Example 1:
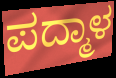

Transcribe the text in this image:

ಪದ್ಮಾಳ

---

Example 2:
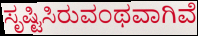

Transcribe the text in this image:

ಸೃಷ್ಟಿಸಿರುವಂಥವಾಗಿವೆ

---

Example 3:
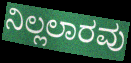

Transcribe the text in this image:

ನಿಲ್ಲಲಾರವು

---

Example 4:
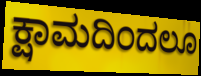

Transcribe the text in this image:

ಕ್ಷಾಮದಿಂದಲೂ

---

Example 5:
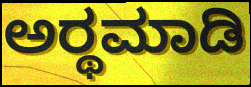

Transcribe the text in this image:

ಅರ್‍ಥಮಾಡಿ